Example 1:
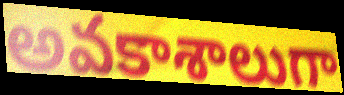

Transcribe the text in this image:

అవకాశాలుగా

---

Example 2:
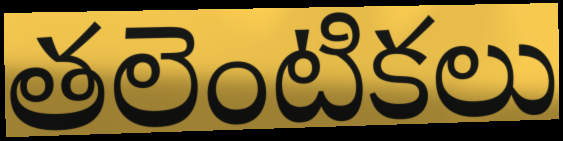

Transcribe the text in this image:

తలెంటికలు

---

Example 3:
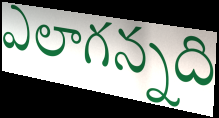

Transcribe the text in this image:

ఎలాగన్నది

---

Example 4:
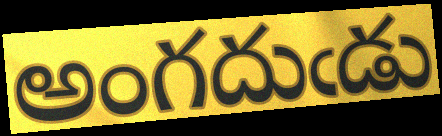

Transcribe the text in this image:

అంగదుఁడు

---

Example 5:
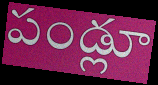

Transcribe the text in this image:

పండ్లూ